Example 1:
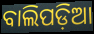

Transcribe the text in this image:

ବାଲିପଡ଼ିଆ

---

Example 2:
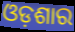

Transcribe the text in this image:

ଓଡ଼ଶାର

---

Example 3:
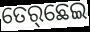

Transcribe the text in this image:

ତେର୍‌ଛେଇ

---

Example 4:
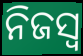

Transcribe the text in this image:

ନିଜସ୍ଵ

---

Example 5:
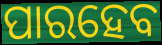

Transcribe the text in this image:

ପାରହେବ